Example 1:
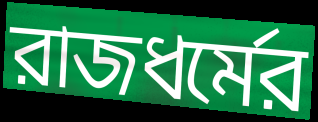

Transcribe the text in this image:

রাজধর্মের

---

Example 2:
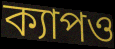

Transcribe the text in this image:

ক্যাপও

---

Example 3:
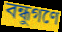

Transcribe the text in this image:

বন্ধুগণে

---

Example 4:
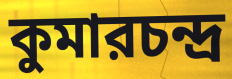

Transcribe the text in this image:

কুমারচন্দ্র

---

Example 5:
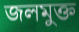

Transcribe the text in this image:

জলমুক্ত